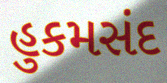
હુકમસંદ